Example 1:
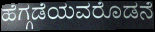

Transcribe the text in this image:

ಹೆಗ್ಗಡೆಯವರೊಡನೆ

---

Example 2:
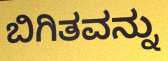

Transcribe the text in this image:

ಬಿಗಿತವನ್ನು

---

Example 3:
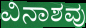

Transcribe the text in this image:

ವಿನಾಶವು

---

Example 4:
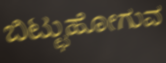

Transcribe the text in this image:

ಬಿಟ್ಟುಹೋಗುವ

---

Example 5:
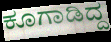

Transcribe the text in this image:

ಕೂಗಾಡಿದ್ದ